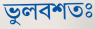
ভুলবশতঃ